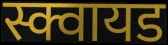
स्क्वायड